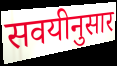
सवयीनुसार